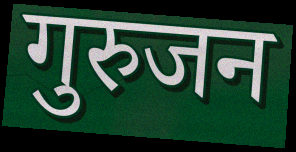
गुरुजन